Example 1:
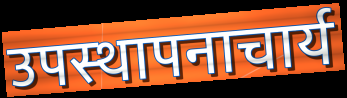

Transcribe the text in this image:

उपस्थापनाचार्य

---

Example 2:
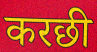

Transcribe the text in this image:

करछी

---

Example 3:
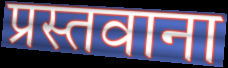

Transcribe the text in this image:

प्रस्तवाना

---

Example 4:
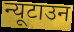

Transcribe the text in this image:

न्यूटाउन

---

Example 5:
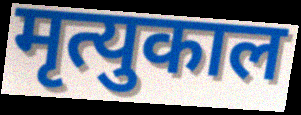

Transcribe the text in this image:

मृत्युकाल